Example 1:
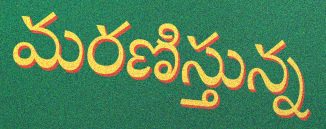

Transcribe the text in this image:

మరణిస్తున్న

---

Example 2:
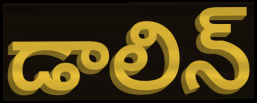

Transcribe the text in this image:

డాలిన్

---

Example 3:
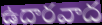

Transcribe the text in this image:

ఉదారవాద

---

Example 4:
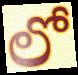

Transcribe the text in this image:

లో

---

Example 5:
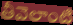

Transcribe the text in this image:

తీవెలాంటి